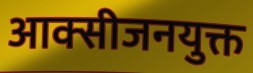
आक्सीजनयुक्त